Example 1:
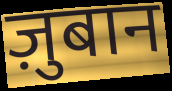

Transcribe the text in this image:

ज़ुबान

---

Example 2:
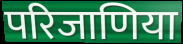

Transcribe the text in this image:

परिजाणिया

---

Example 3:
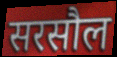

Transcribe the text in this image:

सरसौल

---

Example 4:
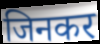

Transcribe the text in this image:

जिनकर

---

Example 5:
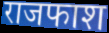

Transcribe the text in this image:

राजफाश